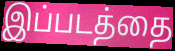
இப்படத்தை